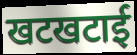
खटखटाई